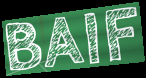
BAIF